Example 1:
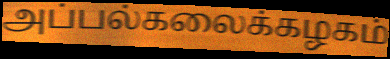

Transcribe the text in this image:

அப்பல்கலைக்கழகம்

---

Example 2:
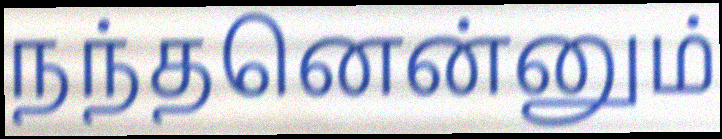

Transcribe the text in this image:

நந்தனென்னும்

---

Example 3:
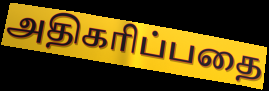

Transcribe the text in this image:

அதிகரிப்பதை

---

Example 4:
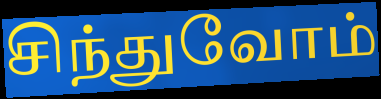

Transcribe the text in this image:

சிந்துவோம்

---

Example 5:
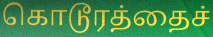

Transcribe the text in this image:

கொடூரத்தைச்